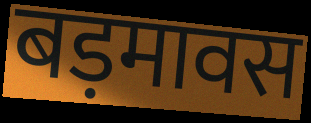
बड़मावस